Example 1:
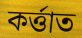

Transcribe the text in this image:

কৰ্ত্তাত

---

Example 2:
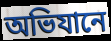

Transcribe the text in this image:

অভিযানে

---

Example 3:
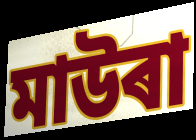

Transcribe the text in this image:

মাউৰা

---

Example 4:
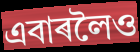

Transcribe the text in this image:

এবাৰলৈও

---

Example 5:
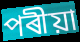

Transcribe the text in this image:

পৰীয়া